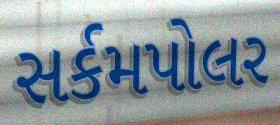
સર્કમપોલર